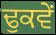
ਢੁਕਵੇਂ